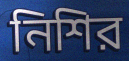
নিশির